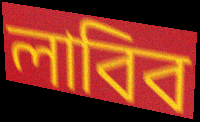
লাবিব